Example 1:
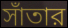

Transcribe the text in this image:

সাঁতার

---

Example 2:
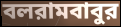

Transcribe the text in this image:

বলরামবাবুর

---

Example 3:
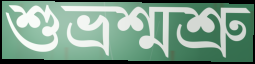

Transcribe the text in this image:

শুভ্রশ্মশ্রু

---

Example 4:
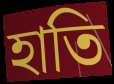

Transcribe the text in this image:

হাতি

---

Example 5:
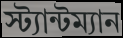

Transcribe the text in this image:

স্ট্যান্টম্যান